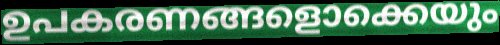
ഉപകരണങ്ങളൊക്കെയും